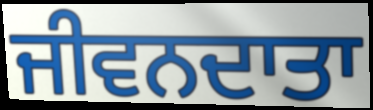
ਜੀਵਨਦਾਤਾ